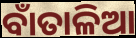
ବାଁତାଳିଆ